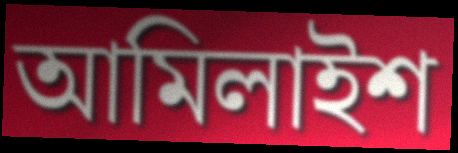
আমিলাইশ